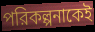
পরিকল্পনাকেই